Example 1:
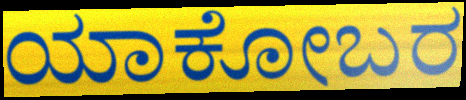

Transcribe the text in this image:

ಯಾಕೋಬರ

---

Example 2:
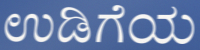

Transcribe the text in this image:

ಉಡಿಗೆಯ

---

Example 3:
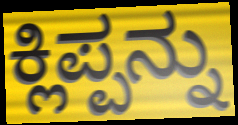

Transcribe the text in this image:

ಕ್ಲಿಪ್ಪನ್ನು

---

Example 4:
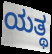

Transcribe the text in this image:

ಯತ್ಥ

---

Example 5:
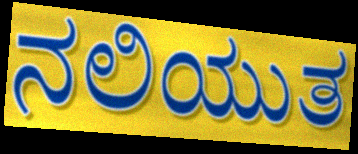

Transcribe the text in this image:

ನಲಿಯುತ